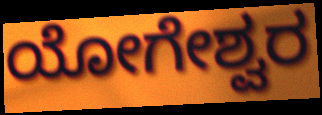
ಯೋಗೇಶ್ವರ